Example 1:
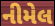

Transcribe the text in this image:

નીમેલ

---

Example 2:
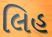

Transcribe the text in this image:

લિહ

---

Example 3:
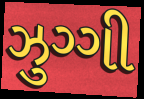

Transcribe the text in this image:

ઝુગ્ગી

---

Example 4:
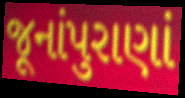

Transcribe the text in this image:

જૂનાંપુરાણાં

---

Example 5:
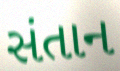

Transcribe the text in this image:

સંતાન